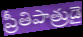
ప్రీతిపాత్రుడై